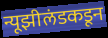
न्यूझीलंडकडून